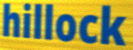
hillock